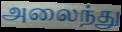
அலைந்து